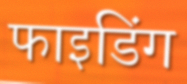
फाइडिंग